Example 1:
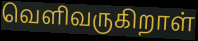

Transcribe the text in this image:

வெளிவருகிறாள்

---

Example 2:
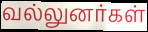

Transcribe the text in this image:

வல்லுனர்கள்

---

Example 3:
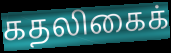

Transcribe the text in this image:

கதலிகைக்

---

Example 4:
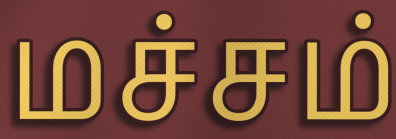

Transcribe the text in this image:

மச்சம்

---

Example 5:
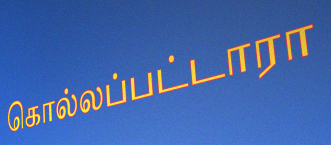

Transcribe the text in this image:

கொல்லப்பட்டாரா